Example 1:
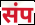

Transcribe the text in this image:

संप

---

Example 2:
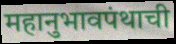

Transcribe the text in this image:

महानुभावपंथाची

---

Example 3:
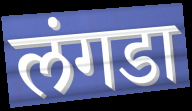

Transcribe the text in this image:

लंगडा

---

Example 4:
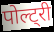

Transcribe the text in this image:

पोल्ट्री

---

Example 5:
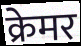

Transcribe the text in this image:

क्रेमर